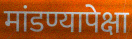
मांडण्यापेक्षा